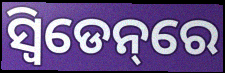
ସ୍ୱିଡେନ୍‌ରେ